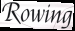
Rowing